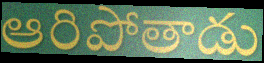
ఆరిపోతాడు